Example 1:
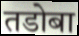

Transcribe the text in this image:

तडोबा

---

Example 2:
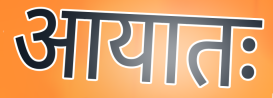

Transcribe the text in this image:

आयातः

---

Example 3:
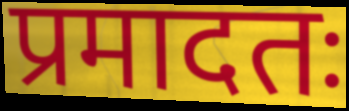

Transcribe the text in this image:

प्रमादतः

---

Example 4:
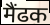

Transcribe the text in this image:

मैंढक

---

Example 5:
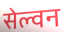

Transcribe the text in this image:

सेल्वन